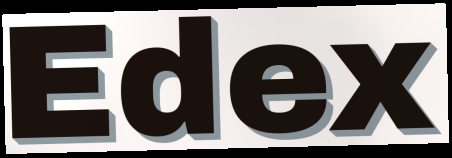
Edex